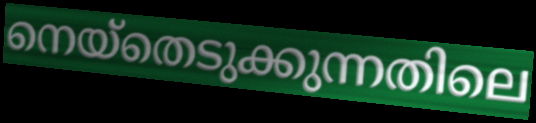
നെയ്തെടുക്കുന്നതിലെ